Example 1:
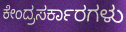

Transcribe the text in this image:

ಕೇಂದ್ರಸರ್ಕಾರಗಳು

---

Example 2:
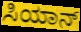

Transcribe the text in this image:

ಸಿಯಾನ್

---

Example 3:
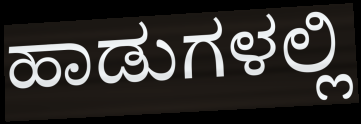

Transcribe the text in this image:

ಹಾಡುಗಳಲ್ಲಿ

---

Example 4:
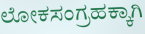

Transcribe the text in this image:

ಲೋಕಸಂಗ್ರಹಕ್ಕಾಗಿ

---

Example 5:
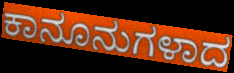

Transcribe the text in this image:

ಕಾನೂನುಗಳಾದ